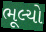
ભૂલ્‍યો